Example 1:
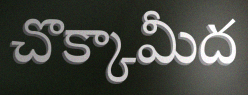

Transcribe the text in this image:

చొక్కామీద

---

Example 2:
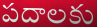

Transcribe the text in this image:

పదాలకు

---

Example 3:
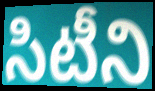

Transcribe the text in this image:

సిటీని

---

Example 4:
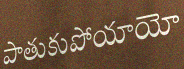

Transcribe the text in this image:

పాతుకుపోయాయో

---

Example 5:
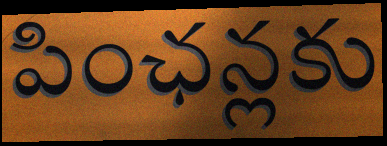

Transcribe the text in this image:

పింఛన్లకు